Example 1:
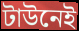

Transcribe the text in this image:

টাউনেই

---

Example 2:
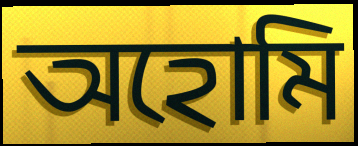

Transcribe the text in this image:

অহোমি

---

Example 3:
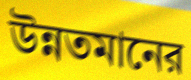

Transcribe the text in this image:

উন্নতমানের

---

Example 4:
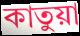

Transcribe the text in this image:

কাতুয়া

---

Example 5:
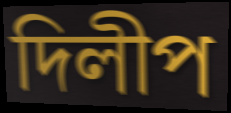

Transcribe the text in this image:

দিলীপ